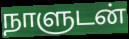
நாளுடன்